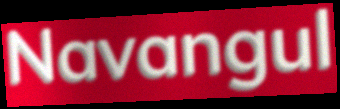
Navangul